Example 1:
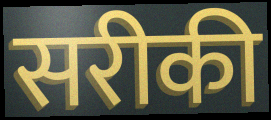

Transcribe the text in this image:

सरीकी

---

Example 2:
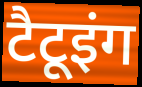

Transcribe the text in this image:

टैटूइंग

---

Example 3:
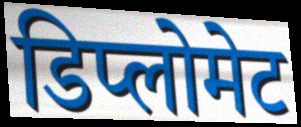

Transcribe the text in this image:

डिप्लोमेट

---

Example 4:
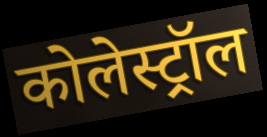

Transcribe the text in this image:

कोलेस्ट्रॉल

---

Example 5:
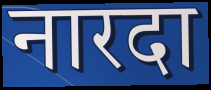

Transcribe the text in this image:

नारदा